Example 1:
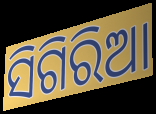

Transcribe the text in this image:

ସିଗିରିଆ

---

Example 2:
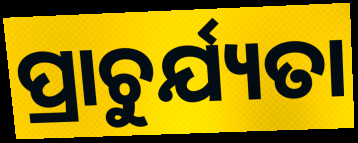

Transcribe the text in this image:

ପ୍ରାଚୁର୍ଯ୍ୟତା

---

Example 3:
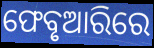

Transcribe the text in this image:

ଫେବୃଆରିରେ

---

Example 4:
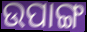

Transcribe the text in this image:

ଉପାଙ୍ଗ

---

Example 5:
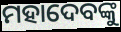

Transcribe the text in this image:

ମହାଦେବଙ୍କୁ